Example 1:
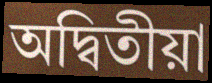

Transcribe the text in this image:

অদ্বিতীয়া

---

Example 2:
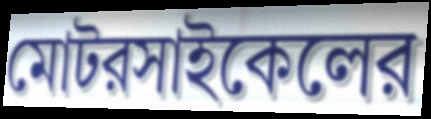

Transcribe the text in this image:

মোটরসাইকেলের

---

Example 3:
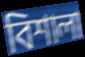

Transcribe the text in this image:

বিশালা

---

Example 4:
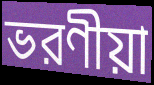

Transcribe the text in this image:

ভরণীয়া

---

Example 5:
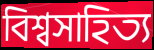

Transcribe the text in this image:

বিশ্বসাহিত্য